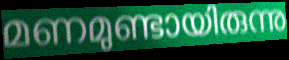
മണമുണ്ടായിരുന്നു